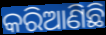
କରିଆଣିଛି